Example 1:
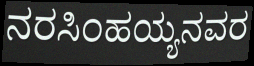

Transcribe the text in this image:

ನರಸಿಂಹಯ್ಯನವರ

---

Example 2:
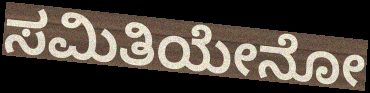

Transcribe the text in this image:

ಸಮಿತಿಯೇನೋ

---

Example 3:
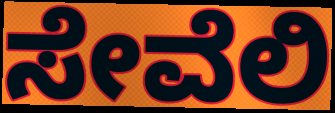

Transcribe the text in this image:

ಸೇವೆಲಿ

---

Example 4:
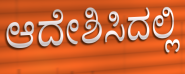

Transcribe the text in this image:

ಆದೇಶಿಸಿದಲ್ಲಿ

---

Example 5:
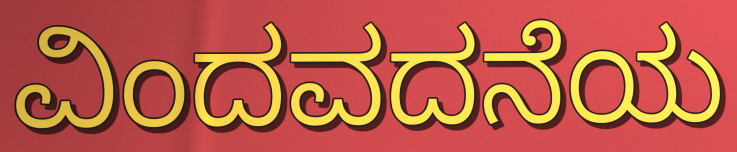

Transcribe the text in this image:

ವಿಂದವದನೆಯ